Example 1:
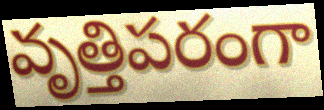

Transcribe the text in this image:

వృత్తిపరంగా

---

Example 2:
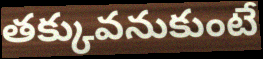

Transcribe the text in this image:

తక్కువనుకుంటే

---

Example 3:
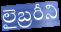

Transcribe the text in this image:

లైబ్రరీని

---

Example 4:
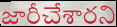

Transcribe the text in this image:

జారీచేశారని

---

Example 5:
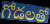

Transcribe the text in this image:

గోడలతో